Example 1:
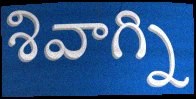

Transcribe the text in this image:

శివాగ్ని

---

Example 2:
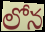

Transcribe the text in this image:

లోన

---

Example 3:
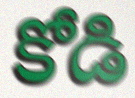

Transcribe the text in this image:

కోడి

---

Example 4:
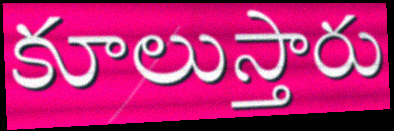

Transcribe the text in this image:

కూలుస్తారు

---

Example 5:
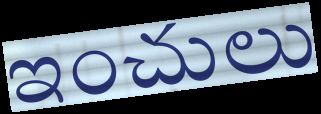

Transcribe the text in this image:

ఇంచులు